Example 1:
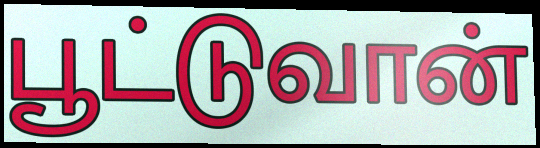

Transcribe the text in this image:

பூட்டுவான்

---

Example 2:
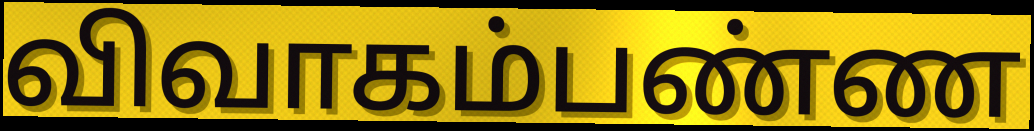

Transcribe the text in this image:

விவாகம்பண்ண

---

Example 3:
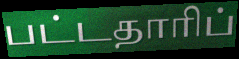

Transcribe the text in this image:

பட்டதாரிப்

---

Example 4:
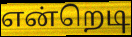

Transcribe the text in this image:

என்றெடி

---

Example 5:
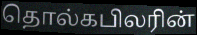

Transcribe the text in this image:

தொல்கபிலரின்